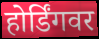
होर्डिंगवर